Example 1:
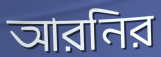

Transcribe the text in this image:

আরনির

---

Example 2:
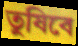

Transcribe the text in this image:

তুষিবে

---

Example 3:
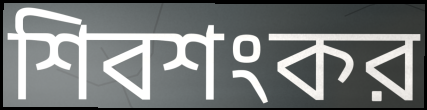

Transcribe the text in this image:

শিবশংকর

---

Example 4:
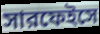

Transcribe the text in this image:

সারফেইসে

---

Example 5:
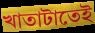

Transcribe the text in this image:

খাতাটাতেই